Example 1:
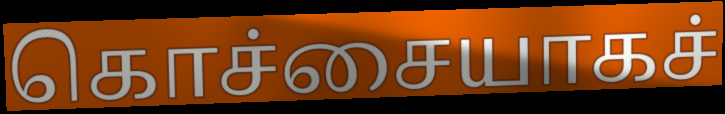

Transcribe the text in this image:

கொச்சையாகச்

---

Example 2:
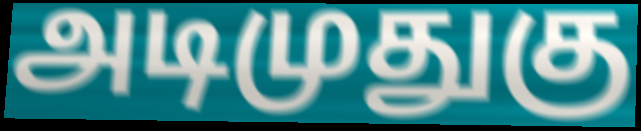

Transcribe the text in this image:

அடிமுதுகு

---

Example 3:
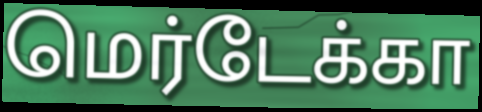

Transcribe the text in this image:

மெர்டேக்கா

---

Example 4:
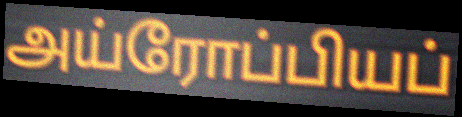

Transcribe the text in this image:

அய்ரோப்பியப்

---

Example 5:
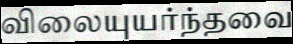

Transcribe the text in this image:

விலையுயர்ந்தவை